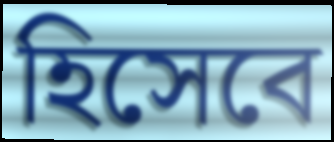
হিসেবে